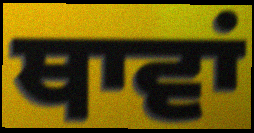
ਥਾਵਾਂ